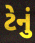
ટેનું